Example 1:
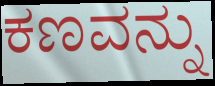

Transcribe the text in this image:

ಕಣವನ್ನು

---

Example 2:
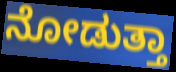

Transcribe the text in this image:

ನೋಡುತ್ತಾ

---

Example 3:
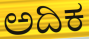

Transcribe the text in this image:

ಅದಿಕ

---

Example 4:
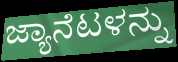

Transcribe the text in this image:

ಜ್ಯಾನೆಟಳನ್ನು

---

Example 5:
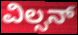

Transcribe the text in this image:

ವಿಲ್ಸನ್